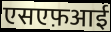
एसएफ़आई